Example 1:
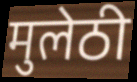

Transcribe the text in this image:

मुलेठी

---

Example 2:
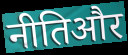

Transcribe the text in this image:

नीतिऔर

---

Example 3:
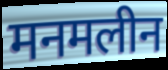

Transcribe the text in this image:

मनमलीन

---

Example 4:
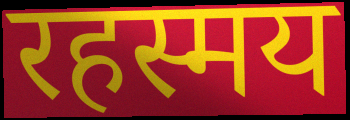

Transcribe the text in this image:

रहस्मय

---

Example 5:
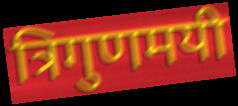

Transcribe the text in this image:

त्रिगुणमयी